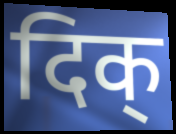
दिक्